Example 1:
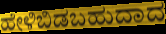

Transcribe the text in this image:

ಹೇಳಿಬಿಡಬಹುದಾದ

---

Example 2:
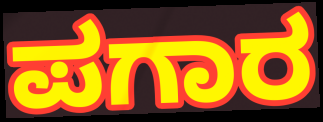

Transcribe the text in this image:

ಪಗಾರ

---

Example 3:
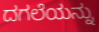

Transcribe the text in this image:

ದಗಲೆಯನ್ನು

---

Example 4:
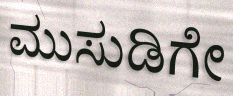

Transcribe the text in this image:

ಮುಸುಡಿಗೇ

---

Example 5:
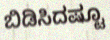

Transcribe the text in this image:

ಬಿಡಿಸಿದಷ್ಟೂ